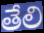
తేలి